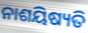
ନାଶୟିଷ୍ୟତି